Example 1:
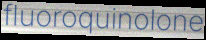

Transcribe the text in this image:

fluoroquinolone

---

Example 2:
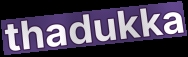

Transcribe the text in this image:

thadukka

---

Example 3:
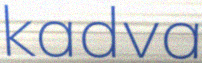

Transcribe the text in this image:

kadva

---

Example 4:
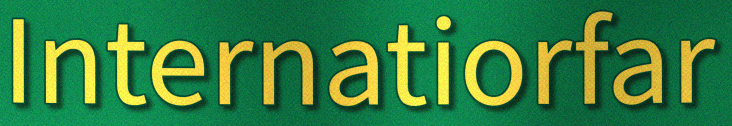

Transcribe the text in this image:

Internatiorfar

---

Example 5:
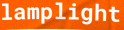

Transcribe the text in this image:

lamplight